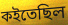
কইতেছিল